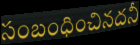
సంబంధించినదనీ